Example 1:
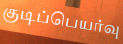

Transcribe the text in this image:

குடிப்பெயர்வு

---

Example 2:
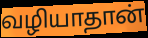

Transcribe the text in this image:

வழியாதான்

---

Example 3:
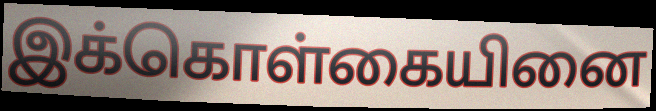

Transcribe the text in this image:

இக்கொள்கையினை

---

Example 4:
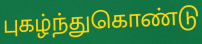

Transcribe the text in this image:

புகழ்ந்துகொண்டு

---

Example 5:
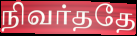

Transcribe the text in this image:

நிவர்ததே